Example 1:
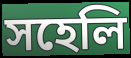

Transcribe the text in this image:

সহেলি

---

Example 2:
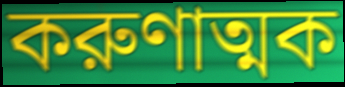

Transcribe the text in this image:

করুণাত্মক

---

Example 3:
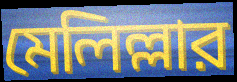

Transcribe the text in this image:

মেলিল্লার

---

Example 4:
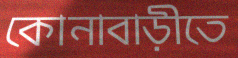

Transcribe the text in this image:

কোনাবাড়ীতে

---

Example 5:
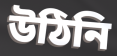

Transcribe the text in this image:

উঠিনি